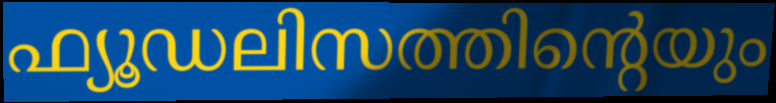
ഫ്യൂഡലിസത്തിന്റെയും